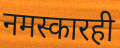
नमस्कारही